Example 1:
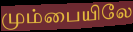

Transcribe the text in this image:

மும்பையிலே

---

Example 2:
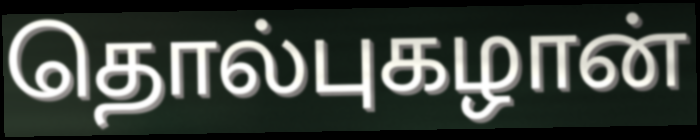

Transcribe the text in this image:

தொல்புகழான்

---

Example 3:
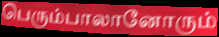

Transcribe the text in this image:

பெரும்பாலானோரும்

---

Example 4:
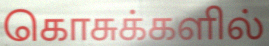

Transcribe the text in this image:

கொசுக்களில்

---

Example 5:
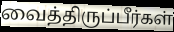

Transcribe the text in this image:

வைத்திருப்பீர்கள்